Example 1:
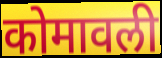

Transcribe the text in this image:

कोमावली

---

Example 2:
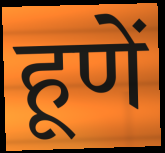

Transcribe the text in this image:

हूणें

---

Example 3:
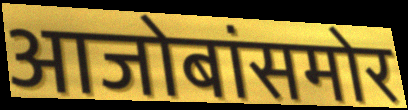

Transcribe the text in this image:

आजोबांसमोर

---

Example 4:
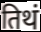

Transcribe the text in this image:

तिथं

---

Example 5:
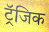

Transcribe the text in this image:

ट्रॅजिक